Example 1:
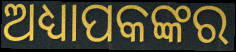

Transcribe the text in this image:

ଅଧ୍ୟାପକଙ୍କର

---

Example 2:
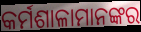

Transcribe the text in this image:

କର୍ମଶାଳାମାନଙ୍କର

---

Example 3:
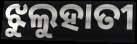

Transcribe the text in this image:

ଝୁଲୁହାତୀ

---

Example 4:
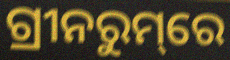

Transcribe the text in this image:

ଗ୍ରୀନରୁମ୍‌ରେ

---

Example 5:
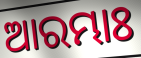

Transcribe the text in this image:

ଆରମ୍ଭାଃ